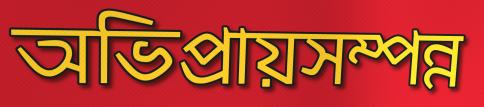
অভিপ্রায়সম্পন্ন